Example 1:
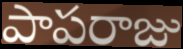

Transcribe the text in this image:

పాపరాజు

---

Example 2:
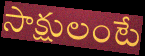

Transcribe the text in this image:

సాక్షులంటే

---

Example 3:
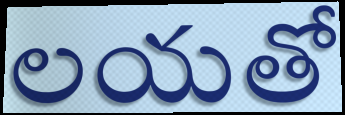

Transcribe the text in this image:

లయతో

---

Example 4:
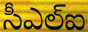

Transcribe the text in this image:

సీఎల్ఐ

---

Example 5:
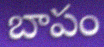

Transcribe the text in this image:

బాపం